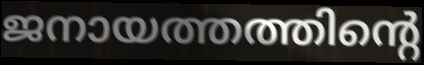
ജനായത്തത്തിന്റെ